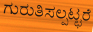
ಗುರುತಿಸಲ್ಪಟ್ಟರೆ